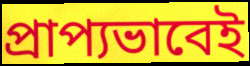
প্রাপ্যভাবেই